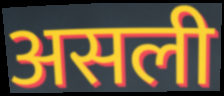
असली